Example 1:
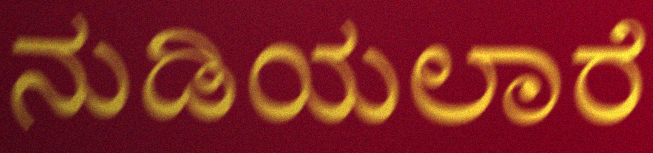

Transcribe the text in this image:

ನುಡಿಯಲಾರೆ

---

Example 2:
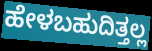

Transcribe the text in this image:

ಹೇಳಬಹುದಿತ್ತಲ್ಲ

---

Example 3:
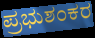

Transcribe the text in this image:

ಪ್ರಭುಶಂಕರ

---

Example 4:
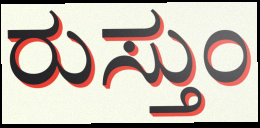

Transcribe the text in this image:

ರುಸ್ತುಂ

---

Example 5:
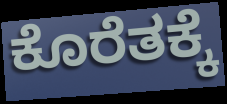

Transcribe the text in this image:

ಕೊರೆತಕ್ಕೆ